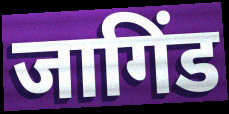
जागिंड